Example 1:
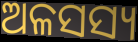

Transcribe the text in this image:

ଅଳସସ୍ୟ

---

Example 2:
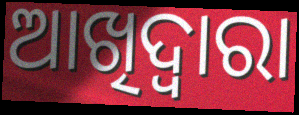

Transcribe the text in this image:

ଆଖିଦ୍ୱାରା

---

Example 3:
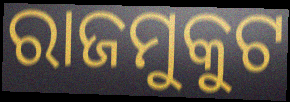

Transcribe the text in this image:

ରାଜମୁକୁଟ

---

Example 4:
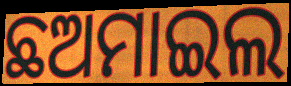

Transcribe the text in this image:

ଛଅମାଇଲ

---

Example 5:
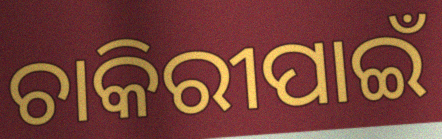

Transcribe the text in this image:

ଚାକିରୀପାଇଁ